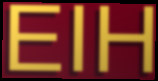
EIH